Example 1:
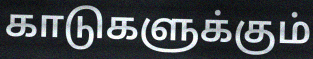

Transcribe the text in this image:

காடுகளுக்கும்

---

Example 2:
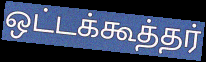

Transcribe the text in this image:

ஒட்டக்கூத்தர்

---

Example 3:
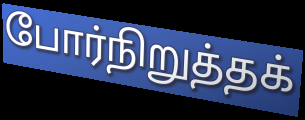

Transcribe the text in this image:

போர்நிறுத்தக்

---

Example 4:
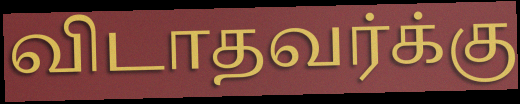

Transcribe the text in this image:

விடாதவர்க்கு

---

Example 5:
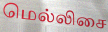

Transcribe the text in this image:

மெல்லிசை